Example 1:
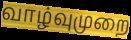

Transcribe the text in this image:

வாழ்வுமுறை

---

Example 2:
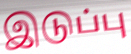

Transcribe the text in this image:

இடுப்பு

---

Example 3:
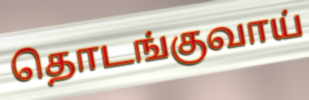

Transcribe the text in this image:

தொடங்குவாய்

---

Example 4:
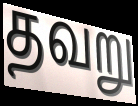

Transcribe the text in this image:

தவறு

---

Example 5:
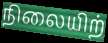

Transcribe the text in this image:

நிலையிற்